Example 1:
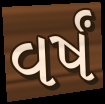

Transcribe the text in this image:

વર્ષં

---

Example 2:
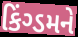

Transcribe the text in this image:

કિંગ્ડમને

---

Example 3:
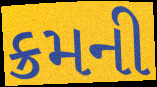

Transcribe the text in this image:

ક્રમની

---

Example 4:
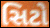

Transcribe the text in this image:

સિટો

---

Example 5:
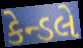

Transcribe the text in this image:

કેન્ડલે